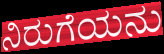
ನಿರುಗೆಯನು